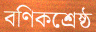
বণিকশ্রেষ্ঠ